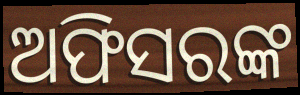
ଅଫିସରଙ୍କ